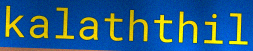
kalaththil